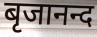
बृजानन्द